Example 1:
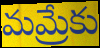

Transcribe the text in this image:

మమ్రేకు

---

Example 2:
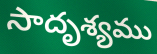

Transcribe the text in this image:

సాదృశ్యము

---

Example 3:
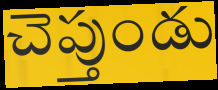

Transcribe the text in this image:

చెప్తుండు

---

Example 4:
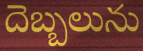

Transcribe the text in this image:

దెబ్బలును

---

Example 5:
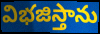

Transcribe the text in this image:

విభజిస్తాను